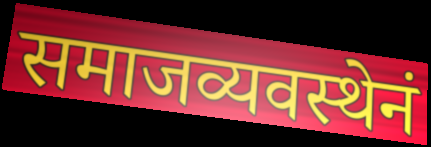
समाजव्यवस्थेनं